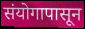
संयोगापासून